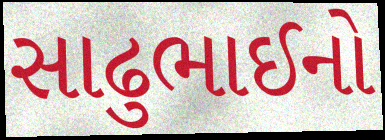
સાઢુભાઈનો